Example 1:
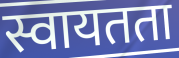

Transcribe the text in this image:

स्वायतता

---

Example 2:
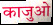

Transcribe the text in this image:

काजुओ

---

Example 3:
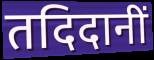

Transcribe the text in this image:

तदिदानीं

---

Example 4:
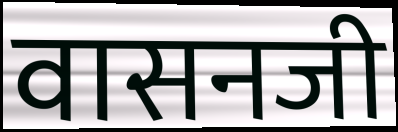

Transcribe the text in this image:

वासनजी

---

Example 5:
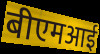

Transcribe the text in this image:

बीएमआई